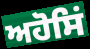
ਅਹੋਸਿਂ